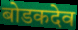
बोडकदेव